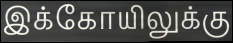
இக்கோயிலுக்கு